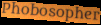
Phobosopher